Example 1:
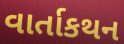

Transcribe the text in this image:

વાર્તાકથન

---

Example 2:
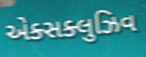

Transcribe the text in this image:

એક્સક્લુઝિવ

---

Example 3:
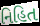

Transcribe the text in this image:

નિહિત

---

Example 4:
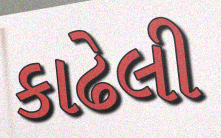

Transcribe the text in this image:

કાઢેલી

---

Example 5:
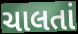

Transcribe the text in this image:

ચાલતાં